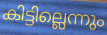
കിട്ടില്ലെന്നും